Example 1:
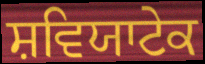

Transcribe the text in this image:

ਸ਼ਵਿਯਾਟੇਕ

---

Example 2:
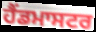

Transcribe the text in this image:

ਹੈਂਡਮਾਸਟਰ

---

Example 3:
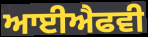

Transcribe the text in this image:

ਆਈਐਫਵੀ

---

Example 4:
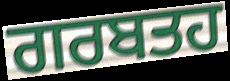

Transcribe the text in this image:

ਗਰਬਤਹ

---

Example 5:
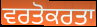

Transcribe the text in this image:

ਵਰਤੋਕਰਤਾ